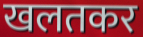
खलतकर